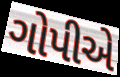
ગોપીએ